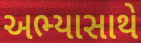
અભ્યાસાથે